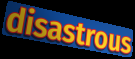
disastrous